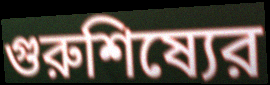
গুরুশিষ্যের